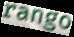
rango